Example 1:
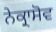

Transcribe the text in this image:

ਨੇਕ੍ਰਾਸੋਵ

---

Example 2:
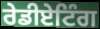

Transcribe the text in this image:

ਰੇਡੀਏਟਿੰਗ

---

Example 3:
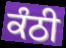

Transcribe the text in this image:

ਕੰਠੀ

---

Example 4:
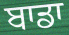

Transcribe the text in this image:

ਬਾਡਾ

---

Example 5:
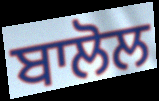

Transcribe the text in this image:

ਬਾਲੋਲ